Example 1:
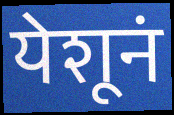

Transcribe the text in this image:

येशूनं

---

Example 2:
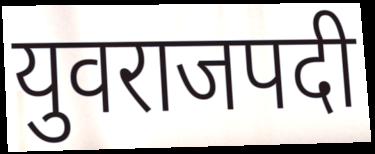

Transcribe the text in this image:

युवराजपदी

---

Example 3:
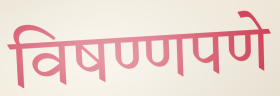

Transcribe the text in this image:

विषण्णपणे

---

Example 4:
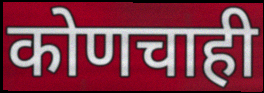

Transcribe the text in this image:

कोणचाही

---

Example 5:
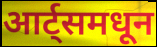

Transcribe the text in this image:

आर्ट्समधून